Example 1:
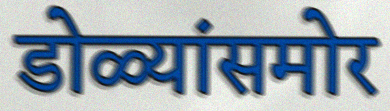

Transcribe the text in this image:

डोळ्यांसमोर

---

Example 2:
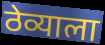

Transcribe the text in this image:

ठेव्याला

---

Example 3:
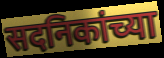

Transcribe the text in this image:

सदनिकांच्या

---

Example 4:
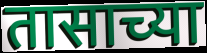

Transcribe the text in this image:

तासाच्या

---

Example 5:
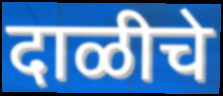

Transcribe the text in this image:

दाळीचे